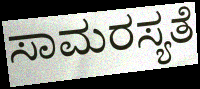
ಸಾಮರಸ್ಯತೆ